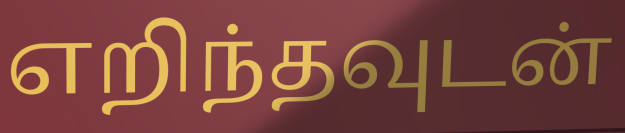
எறிந்தவுடன்